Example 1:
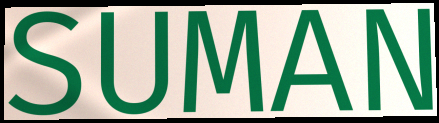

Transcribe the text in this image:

SUMAN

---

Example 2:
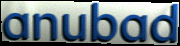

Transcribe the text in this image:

anubad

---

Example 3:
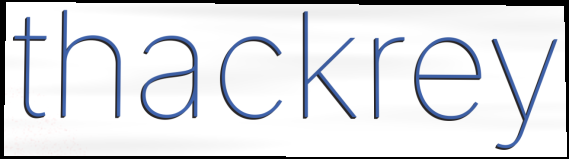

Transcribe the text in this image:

thackrey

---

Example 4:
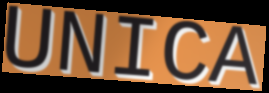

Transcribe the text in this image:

UNICA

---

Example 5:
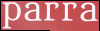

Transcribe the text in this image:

parra